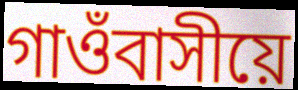
গাওঁবাসীয়ে